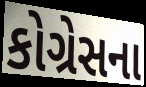
કોગ્રેસના